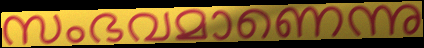
സംഭവമാണെന്നു